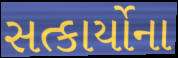
સત્કાર્યોના